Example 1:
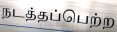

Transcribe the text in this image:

நடத்தப்பெற்ற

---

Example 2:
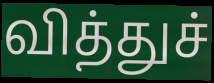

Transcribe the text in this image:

வித்துச்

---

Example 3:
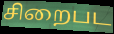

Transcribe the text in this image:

சிறைபட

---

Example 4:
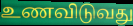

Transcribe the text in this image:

உணவிடுவது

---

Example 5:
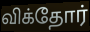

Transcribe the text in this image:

விக்தோர்